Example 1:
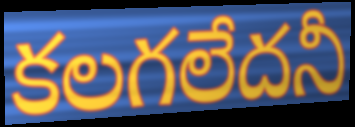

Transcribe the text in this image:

కలగలేదనీ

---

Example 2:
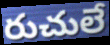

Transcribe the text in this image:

రుచులే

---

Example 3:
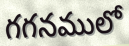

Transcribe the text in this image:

గగనములో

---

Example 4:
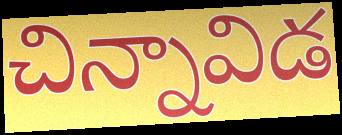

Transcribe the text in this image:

చిన్నావిడ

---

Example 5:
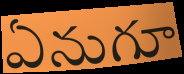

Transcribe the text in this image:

ఏనుగూ